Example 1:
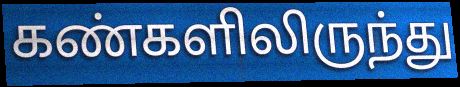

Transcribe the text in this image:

கண்களிலிருந்து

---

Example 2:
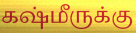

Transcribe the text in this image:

கஷ்மீருக்கு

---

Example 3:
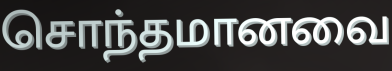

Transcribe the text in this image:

சொந்தமானவை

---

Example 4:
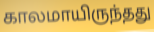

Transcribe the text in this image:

காலமாயிருந்தது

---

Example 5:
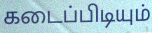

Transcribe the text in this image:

கடைப்பிடியும்